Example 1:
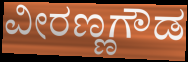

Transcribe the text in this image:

ವೀರಣ್ಣಗೌಡ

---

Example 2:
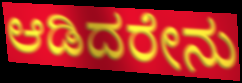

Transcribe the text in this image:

ಆಡಿದರೇನು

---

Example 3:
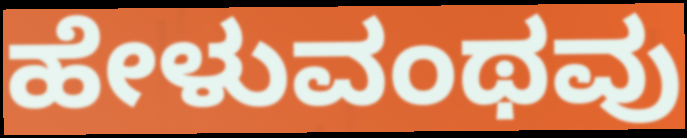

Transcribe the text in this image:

ಹೇಳುವಂಥವು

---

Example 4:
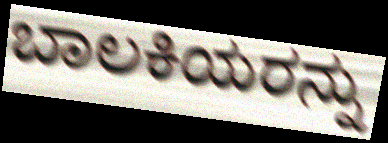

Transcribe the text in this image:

ಬಾಲಕಿಯರನ್ನು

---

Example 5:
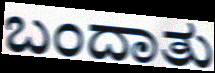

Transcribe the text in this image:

ಬಂದಾತು